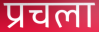
प्रचला